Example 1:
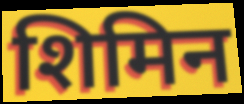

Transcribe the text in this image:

शिमिन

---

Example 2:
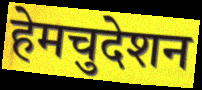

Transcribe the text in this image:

हेमचुदेशन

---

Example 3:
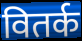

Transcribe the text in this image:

वितर्क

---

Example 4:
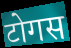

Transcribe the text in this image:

टोगस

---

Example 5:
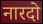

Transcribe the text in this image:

नारदो